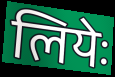
लियेः